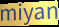
miyan